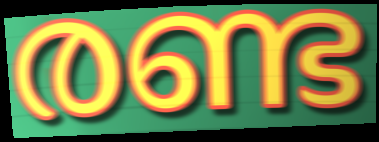
രണ്ട